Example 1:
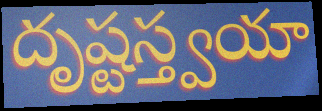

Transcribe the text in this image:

దృష్టస్త్వయా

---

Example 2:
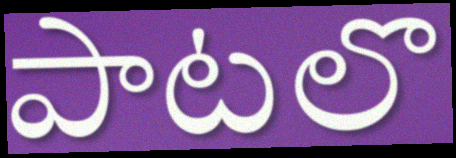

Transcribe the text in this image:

పాటలొ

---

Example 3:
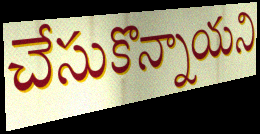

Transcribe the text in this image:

చేసుకొన్నాయని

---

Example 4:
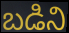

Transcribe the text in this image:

బడిని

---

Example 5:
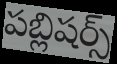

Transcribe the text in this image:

పబ్లిషర్స్